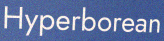
Hyperborean